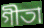
গীতা